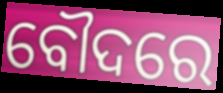
ବୌଦରେ